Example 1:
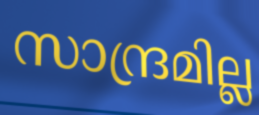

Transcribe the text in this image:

സാന്ദ്രമില്ല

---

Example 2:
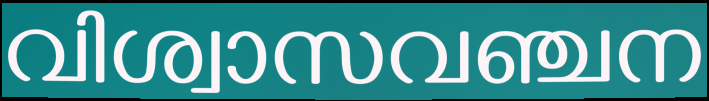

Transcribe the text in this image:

വിശ്വാസവഞ്ചന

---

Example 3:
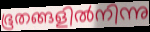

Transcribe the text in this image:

ഭൂതങ്ങളിൽനിന്നു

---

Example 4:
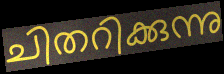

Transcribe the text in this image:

ചിതറിക്കുന്നു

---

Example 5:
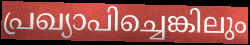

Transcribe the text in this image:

പ്രഖ്യാപിച്ചെങ്കിലും